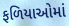
ફળિયાઓમાં